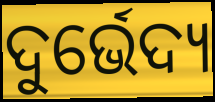
ଦୁର୍ଭେଦ୍ୟ